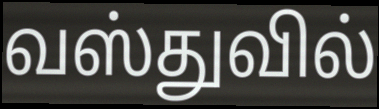
வஸ்துவில்